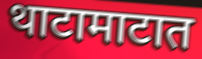
थाटामाटात